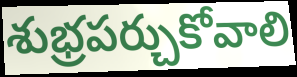
శుభ్రపర్చుకోవాలి